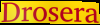
Drosera